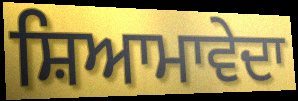
ਸ਼ਿਆਮਾਵੇਦਾ